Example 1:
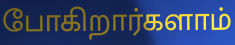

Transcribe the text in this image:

போகிறார்களாம்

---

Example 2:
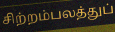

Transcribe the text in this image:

சிற்றம்பலத்துப்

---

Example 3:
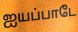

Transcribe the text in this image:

ஐயப்பாடே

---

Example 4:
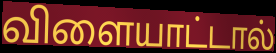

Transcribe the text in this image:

விளையாட்டால்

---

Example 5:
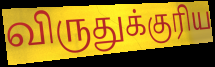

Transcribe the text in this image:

விருதுக்குரிய